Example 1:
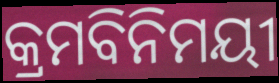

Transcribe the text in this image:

କ୍ରମବିନିମୟୀ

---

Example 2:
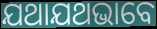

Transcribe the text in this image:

ଯଥାଯଥଭାବେ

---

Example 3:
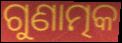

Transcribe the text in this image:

ଗୁଣାତ୍ମକ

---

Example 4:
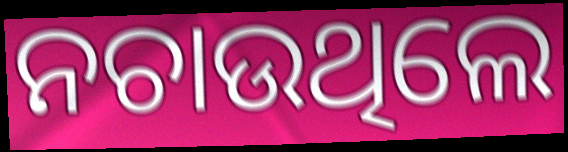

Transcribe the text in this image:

ନଚାଉଥିଲେ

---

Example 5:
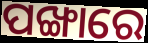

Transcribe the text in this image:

ପଙ୍ଖାରେ